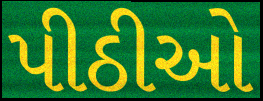
પીઠીઓ